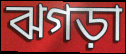
ঝগড়া